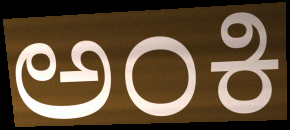
ಅಂಕಿ